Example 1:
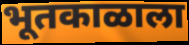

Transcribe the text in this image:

भूतकाळाला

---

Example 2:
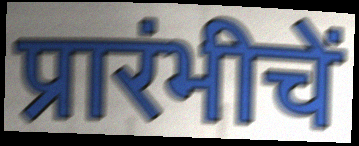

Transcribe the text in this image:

प्रारंभीचें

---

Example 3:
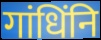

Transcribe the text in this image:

गांधिंनि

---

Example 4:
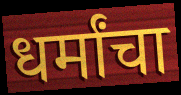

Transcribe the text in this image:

धर्मांचा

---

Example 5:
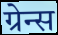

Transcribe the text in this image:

ग्रेन्स